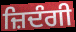
ਜ਼ਿਦੰਗੀ